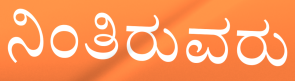
ನಿಂತಿರುವರು